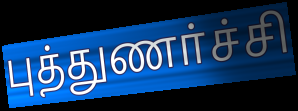
புத்துணர்ச்சி